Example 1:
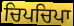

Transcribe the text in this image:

ਚਿਪਚਿਪਾ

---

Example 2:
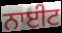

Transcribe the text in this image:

ਨਾਈਟ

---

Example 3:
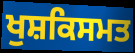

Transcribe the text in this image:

ਖੁਸ਼ਕਿਸਮਤ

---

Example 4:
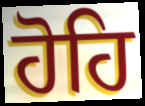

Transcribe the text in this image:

ਹੋਹਿ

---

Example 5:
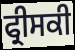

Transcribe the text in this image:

ਫ੍ਰੀਸਕੀ